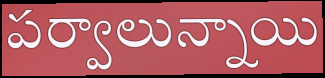
పర్వాలున్నాయి